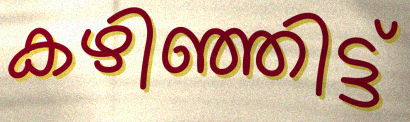
കഴിഞ്ഞിട്ട്